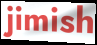
jimish